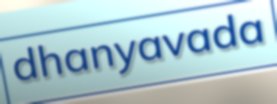
dhanyavada